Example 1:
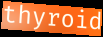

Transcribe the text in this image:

thyroid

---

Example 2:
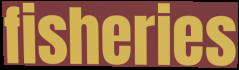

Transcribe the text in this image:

fisheries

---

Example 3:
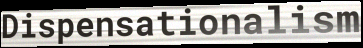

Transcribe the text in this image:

Dispensationalism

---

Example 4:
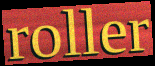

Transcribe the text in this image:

roller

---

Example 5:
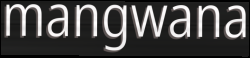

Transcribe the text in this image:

mangwana